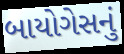
બાયોગેસનું